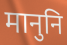
मानुनि